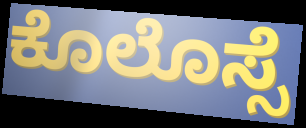
ಕೊಲೊಸ್ಸೆ